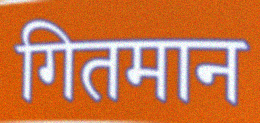
गितमान